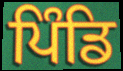
ਪਿੰਡਿ